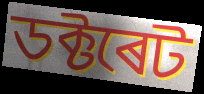
ডক্টৰেট